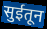
सुईतून